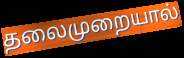
தலைமுறையால்